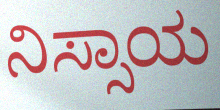
ನಿಸ್ಸಾಯ